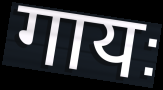
गायः